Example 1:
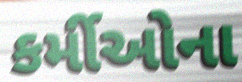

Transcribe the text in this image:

કર્મીઓના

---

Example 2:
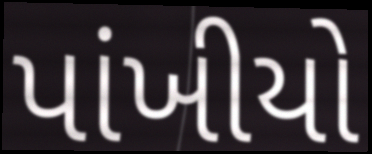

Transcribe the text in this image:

પાંખીયો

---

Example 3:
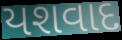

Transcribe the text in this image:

યશવાદ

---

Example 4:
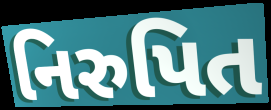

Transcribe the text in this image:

નિરુપિત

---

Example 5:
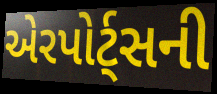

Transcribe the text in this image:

એરપોર્ટ્સની